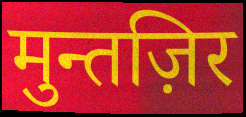
मुन्तज़िर